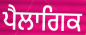
ਪੈਲਾਗਿਕ